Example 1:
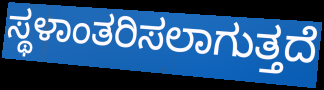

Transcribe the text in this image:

ಸ್ಥಳಾಂತರಿಸಲಾಗುತ್ತದೆ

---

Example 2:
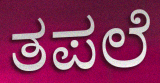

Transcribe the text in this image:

ತಪಲೆ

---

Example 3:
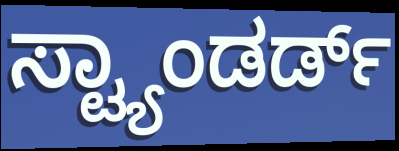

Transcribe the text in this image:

ಸ್ಟ್ಯಾಂಡರ್ಡ್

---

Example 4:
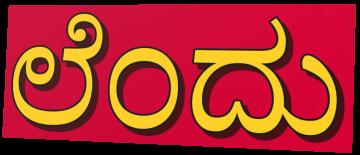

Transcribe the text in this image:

ಲೆಂದು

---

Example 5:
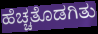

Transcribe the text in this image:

ಹೆಚ್ಚತೊಡಗಿತು